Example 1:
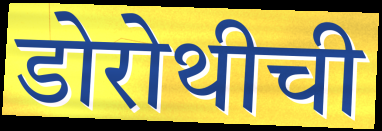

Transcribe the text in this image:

डोरोथीची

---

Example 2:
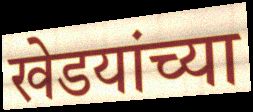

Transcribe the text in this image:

खेडयांच्या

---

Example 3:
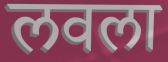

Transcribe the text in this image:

लवला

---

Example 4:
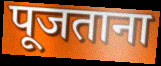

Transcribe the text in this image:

पूजताना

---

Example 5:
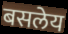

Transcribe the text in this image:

बसलेय